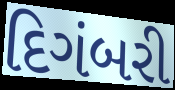
દિગંબરી